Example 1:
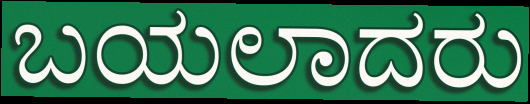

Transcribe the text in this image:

ಬಯಲಾದರು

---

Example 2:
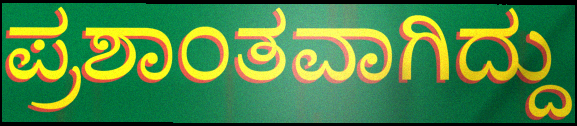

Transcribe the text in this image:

ಪ್ರಶಾಂತವಾಗಿದ್ದು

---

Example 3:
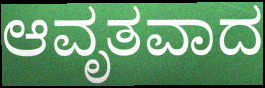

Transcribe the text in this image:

ಆವೃತವಾದ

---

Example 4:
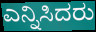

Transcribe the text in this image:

ಎನ್ನಿಸಿದರು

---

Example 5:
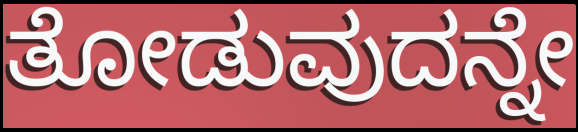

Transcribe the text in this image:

ತೋಡುವುದನ್ನೇ